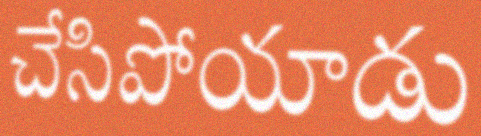
చేసిపోయాడు